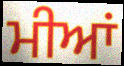
ਮੀਆਂ